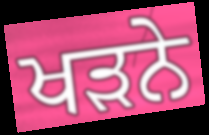
ਖੜਨੇ